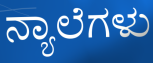
ನ್ಯಾಲೆಗಳು